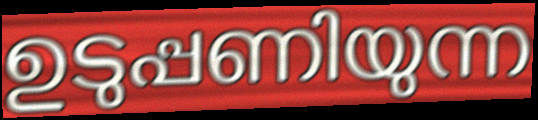
ഉടുപ്പണിയുന്ന